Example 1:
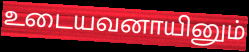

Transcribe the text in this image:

உடையவனாயினும்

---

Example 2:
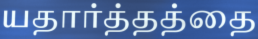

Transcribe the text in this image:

யதார்த்தத்தை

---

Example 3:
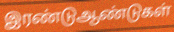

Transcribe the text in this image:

இரண்டுஆண்டுகள்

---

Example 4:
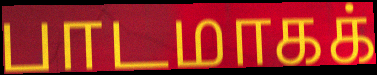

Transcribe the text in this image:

பாடமாகக்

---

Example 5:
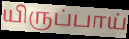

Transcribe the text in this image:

யிருப்பாய்